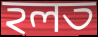
হলত